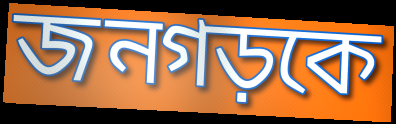
জনগড়কে